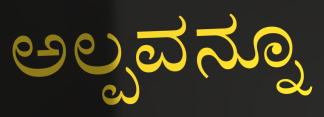
ಅಲ್ಪವನ್ನೂ